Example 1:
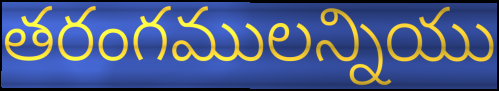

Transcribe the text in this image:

తరంగములన్నియు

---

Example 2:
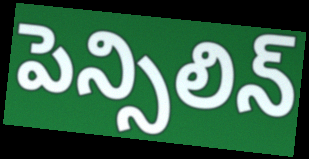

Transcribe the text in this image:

పెన్సిలిన్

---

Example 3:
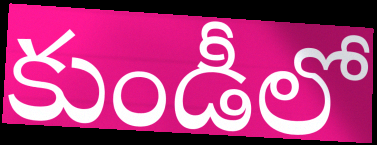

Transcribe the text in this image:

కుండీలో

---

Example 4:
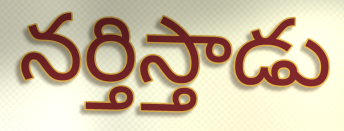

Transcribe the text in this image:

నర్తిస్తాడు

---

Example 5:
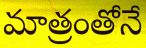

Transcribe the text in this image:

మాత్రంతోనే